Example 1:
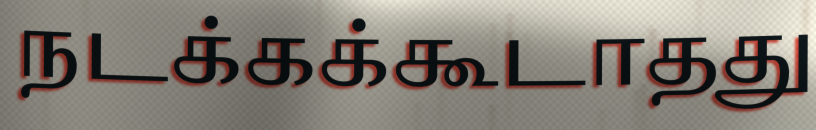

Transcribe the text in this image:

நடக்கக்கூடாதது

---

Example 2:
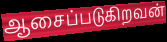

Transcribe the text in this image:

ஆசைப்படுகிறவன்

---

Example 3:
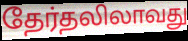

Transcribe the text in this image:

தேர்தலிலாவது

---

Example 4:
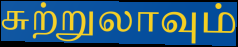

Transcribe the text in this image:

சுற்றுலாவும்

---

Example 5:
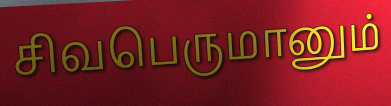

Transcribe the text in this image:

சிவபெருமானும்